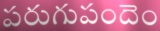
పరుగుపందెం